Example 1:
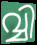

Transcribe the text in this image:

വ്വി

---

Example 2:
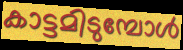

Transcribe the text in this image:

കാട്ടമിടുമ്പോൾ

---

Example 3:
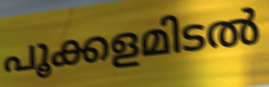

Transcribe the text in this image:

പൂക്കളമിടൽ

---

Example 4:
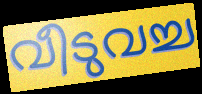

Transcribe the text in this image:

വീടുവച്ച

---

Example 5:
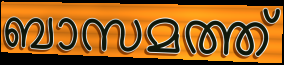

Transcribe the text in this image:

ബാസമത്ത്